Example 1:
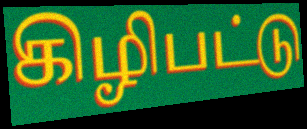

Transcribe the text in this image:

கிழிபட்டு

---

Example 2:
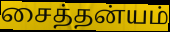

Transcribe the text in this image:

சைத்தன்யம்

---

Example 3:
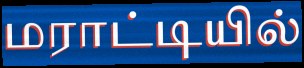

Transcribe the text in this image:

மராட்டியில்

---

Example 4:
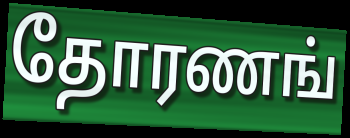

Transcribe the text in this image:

தோரணங்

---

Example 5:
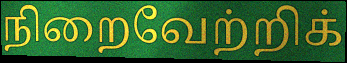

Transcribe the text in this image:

நிறைவேற்றிக்